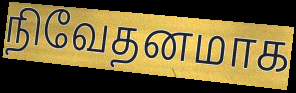
நிவேதனமாக